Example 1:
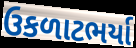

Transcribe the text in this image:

ઉકળાટભર્યા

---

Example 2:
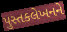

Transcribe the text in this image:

પુસ્તકલેખનને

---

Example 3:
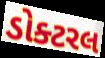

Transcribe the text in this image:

ડોક્ટરલ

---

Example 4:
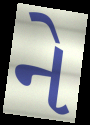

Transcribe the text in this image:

ને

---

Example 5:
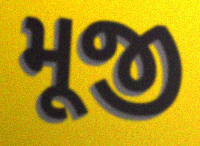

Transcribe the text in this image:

મૂજી